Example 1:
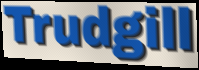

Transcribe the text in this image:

Trudgill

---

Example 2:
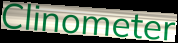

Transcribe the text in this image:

Clinometer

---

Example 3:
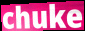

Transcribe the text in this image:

chuke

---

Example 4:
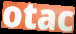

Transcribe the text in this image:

otac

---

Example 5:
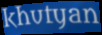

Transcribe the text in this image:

khutyan